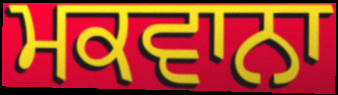
ਮਕਵਾਨਾ